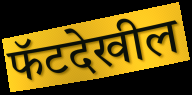
फॅटदेखील